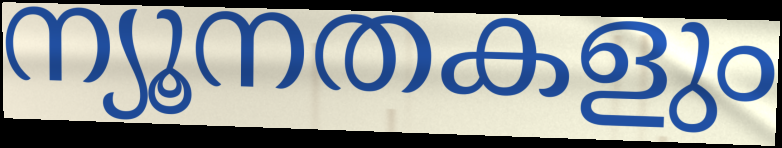
ന്യൂനതകളും